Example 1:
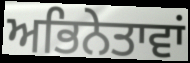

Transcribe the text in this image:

ਅਭਿਨੇਤਾਵਾਂ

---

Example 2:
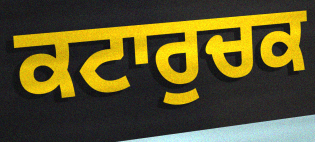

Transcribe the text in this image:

ਕਟਾਰੁਚਕ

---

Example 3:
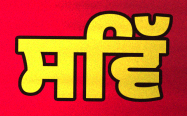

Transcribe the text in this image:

ਸਵਿੱ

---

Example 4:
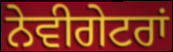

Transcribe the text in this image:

ਨੇਵੀਗੇਟਰਾਂ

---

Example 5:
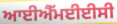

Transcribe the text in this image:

ਆਈਐੱਮਈਈਸੀ